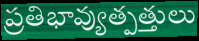
ప్రతిభావ్యుత్పత్తులు